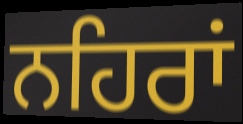
ਨਹਿਰਾਂ